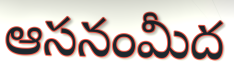
ఆసనంమీద